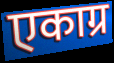
एकाग्र